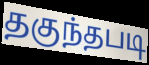
தகுந்தபடி